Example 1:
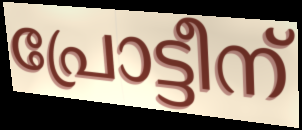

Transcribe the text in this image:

പ്രോട്ടീന്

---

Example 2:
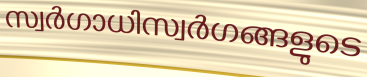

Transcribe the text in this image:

സ്വർഗാധിസ്വർഗങ്ങളുടെ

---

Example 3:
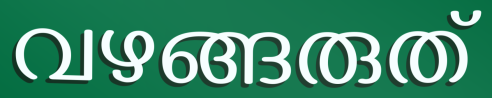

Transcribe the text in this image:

വഴങ്ങരുത്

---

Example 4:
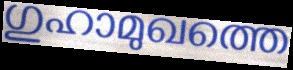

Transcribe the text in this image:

ഗുഹാമുഖത്തെ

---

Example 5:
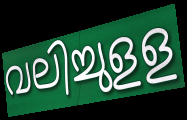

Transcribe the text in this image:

വലിച്ചുളള